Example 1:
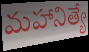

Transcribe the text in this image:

మహానిత్యే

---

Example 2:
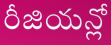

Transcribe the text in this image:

రీజియన్లో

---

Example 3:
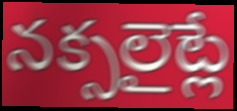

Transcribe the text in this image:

నక్సలైట్లే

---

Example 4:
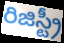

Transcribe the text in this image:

రిజిస్ట్రీ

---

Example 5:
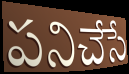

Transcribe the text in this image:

పనిచేసే